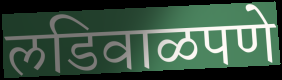
लडिवाळपणे